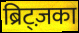
ब्रिट्ज़का